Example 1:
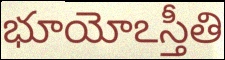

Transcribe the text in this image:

భూయోఽస్తీతి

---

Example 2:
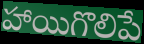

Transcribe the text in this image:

హాయిగొలిపే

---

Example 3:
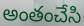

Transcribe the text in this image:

అంతంచేసి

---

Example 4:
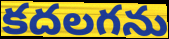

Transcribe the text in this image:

కదలగను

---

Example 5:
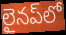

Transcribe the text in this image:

లైనప్‌లో